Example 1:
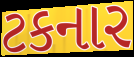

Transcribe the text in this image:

ટકનાર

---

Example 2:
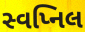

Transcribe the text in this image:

સ્વપ્નિલ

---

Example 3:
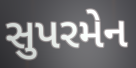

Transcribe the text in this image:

સુપરમેન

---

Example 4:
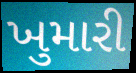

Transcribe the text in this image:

ખુમારી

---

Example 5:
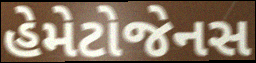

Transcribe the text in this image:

હેમેટોજેનસ